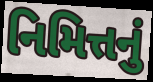
નિમિત્તનું